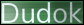
Dudok